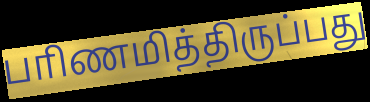
பரிணமித்திருப்பது